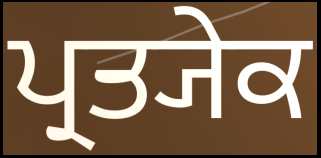
ਪ੍ਰਤ੍ਯੇਕ